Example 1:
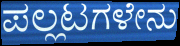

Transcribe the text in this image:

ಪಲ್ಲಟಗಳೇನು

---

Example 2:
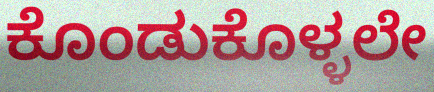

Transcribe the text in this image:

ಕೊಂಡುಕೊಳ್ಳಲೇ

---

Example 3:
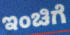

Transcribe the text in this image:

ಇಂಚಿಗೆ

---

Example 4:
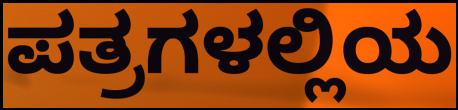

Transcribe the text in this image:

ಪತ್ರಗಳಲ್ಲಿಯ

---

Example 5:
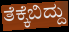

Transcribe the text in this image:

ತೆಕ್ಕೆಬಿದ್ದು